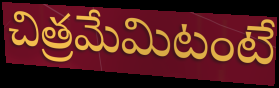
చిత్రమేమిటంటే